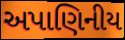
અપાણિનીય